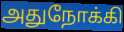
அதுநோக்கி